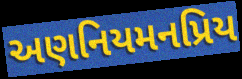
અણનિયમનપ્રિય